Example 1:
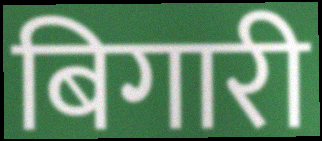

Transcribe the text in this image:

बिगारी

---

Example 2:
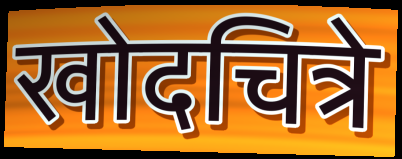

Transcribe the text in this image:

खोदचित्रे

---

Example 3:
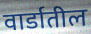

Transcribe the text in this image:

वार्डातील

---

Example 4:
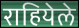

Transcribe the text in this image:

राहियेले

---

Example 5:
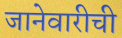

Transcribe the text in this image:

जानेवारीची